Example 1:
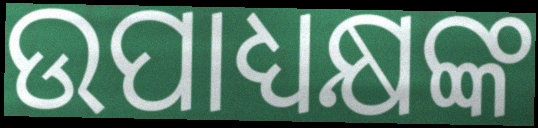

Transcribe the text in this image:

ଉପାଧ୍ୟକ୍ଷଙ୍କ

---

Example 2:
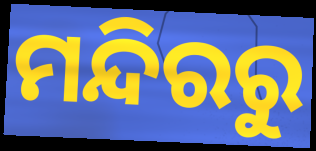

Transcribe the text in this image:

ମନ୍ଦିରରୁ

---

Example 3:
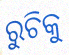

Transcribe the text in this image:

ରୁଚିକୁ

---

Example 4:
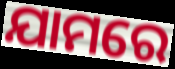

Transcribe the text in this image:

ଯାମରେ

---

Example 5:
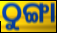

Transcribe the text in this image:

ଠୁଙ୍ଗା